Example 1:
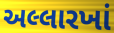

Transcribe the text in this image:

અલ્લારખાં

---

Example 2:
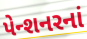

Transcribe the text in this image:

પેન્શનરનાં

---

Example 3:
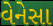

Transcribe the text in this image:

વેનેસા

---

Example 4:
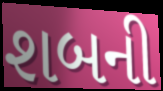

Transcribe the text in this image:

શબની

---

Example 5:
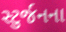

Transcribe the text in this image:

સ્ટુર્જનના